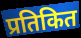
प्रतिकित